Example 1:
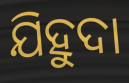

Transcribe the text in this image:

ଯିହୁଦା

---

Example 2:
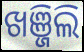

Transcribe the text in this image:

ଖଞ୍ଜିଲି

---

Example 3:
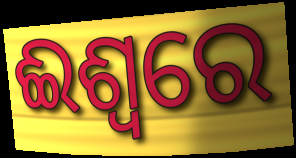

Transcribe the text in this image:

ଈଶ୍ଵରେ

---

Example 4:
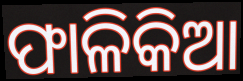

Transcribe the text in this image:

ଫାଳିକିଆ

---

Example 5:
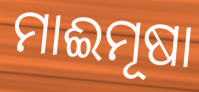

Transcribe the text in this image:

ମାଈମୂଷା